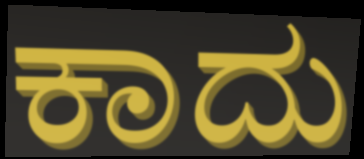
ಕಾದು